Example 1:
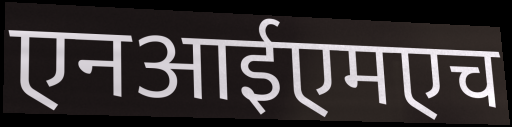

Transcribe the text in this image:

एनआईएमएच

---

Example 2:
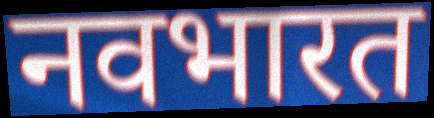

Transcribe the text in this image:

नवभारत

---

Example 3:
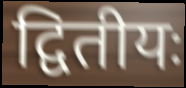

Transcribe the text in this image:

द्वितीयः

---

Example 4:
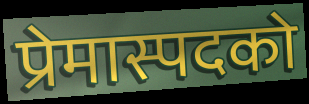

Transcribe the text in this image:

प्रेमास्पदको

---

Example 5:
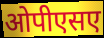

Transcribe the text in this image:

ओपीएसए